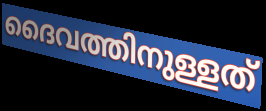
ദൈവത്തിനുള്ളത്